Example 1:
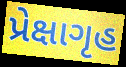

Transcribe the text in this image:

પ્રેક્ષાગૃહ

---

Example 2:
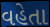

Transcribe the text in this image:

વહેતા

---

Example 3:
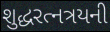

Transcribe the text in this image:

શુદ્ધરત્નત્રયની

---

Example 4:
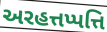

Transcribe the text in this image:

અરહત્તપ્પત્તિ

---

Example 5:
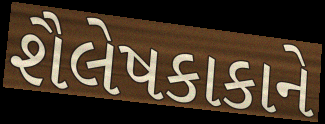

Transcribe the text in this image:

શૈલેષકાકાને